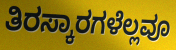
ತಿರಸ್ಕಾರಗಳೆಲ್ಲವೂ